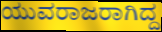
ಯುವರಾಜರಾಗಿದ್ದ